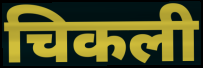
चिकली